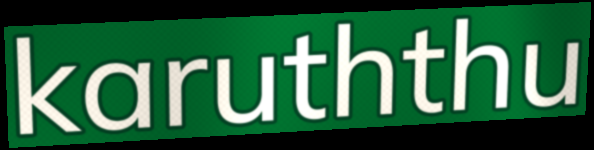
karuththu